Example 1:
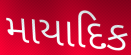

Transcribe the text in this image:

માયાદિક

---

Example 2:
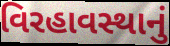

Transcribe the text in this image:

વિરહાવસ્થાનું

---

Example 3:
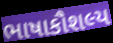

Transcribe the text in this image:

ભાષાકૌશલ્ય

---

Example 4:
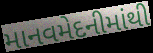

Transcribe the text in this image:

માનવમેદનીમાંથી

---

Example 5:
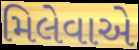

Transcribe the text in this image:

મિલેવાએ